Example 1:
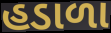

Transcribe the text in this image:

હડાળા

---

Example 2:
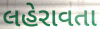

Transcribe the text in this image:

લહેરાવતા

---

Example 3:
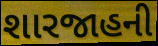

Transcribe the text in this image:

શારજાહની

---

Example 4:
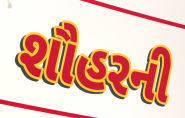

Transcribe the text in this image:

શૌહરની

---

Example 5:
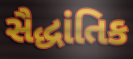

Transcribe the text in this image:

સૈદ્ધાંતિક